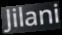
Jilani